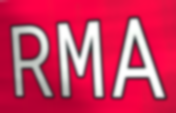
RMA